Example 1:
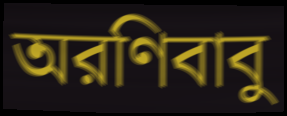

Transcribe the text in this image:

অরণিবাবু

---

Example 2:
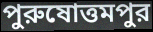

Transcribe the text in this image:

পুরুষোত্তমপুর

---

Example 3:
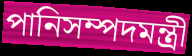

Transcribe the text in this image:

পানিসম্পদমন্ত্রী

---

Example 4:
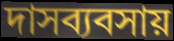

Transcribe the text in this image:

দাসব্যবসায়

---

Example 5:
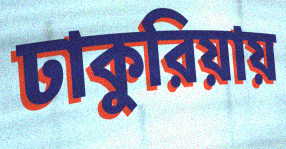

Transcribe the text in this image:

ঢাকুরিয়ায়